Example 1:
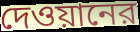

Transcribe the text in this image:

দেওয়ানের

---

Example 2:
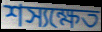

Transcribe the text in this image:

শস্যক্ষেত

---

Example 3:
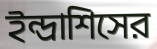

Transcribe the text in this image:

ইন্দ্রাশিসের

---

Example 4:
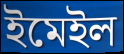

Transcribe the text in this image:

ইমেইল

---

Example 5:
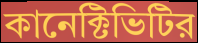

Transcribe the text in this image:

কানেক্টিভিটির